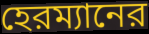
হেরম্যানের